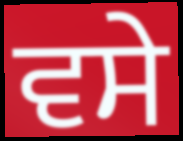
ਵਸੇ